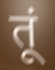
तूं